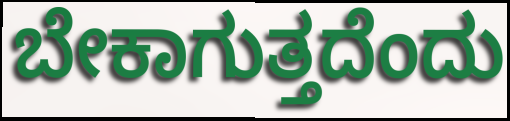
ಬೇಕಾಗುತ್ತದೆಂದು